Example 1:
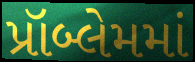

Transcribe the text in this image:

પ્રૉબ્લેમમાં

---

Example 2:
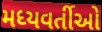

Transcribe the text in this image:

મધ્યવર્તીઓ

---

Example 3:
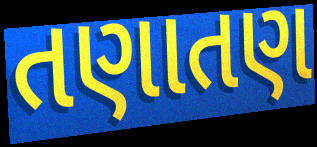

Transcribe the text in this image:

તણાતણ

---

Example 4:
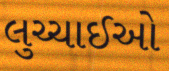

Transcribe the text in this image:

લુચ્ચાઈઓ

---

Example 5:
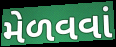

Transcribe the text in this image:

મેળવવાં